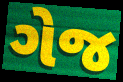
ગેજ